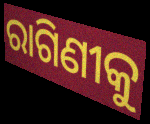
ରାଗିଣୀକୁ